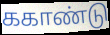
ககாண்டு